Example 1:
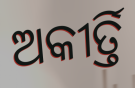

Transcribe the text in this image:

ଅକୀର୍ତ୍ତି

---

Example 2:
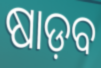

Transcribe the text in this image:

ଷାଡ଼ବ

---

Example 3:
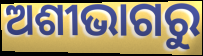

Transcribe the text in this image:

ଅଶୀଭାଗରୁ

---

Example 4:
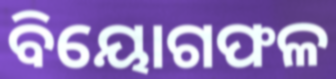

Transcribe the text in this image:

ବିୟୋଗଫଳ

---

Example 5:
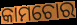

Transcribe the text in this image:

କାମଚୋର